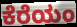
ಕೆರೆಯಂ